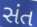
સંત